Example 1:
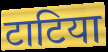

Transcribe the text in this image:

टाटिया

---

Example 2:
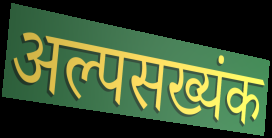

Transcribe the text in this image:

अल्पसख्यंक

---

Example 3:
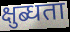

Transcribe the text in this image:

क्षुब्धता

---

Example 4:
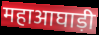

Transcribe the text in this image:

महाआघाड़ी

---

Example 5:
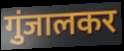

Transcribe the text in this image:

गुंजालकर